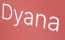
Dyana